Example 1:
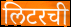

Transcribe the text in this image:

लिटरची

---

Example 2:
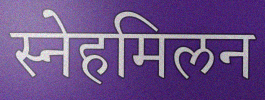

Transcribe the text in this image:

स्नेहमिलन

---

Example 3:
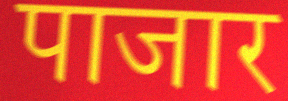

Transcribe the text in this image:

पाजार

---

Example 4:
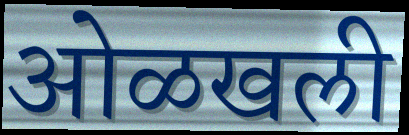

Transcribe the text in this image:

ओळखली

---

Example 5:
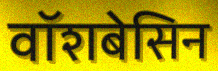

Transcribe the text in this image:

वॉशबेसिन